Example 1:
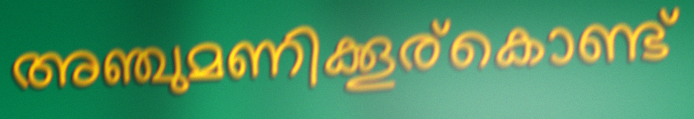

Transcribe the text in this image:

അഞ്ചുമണിക്കൂര്കൊണ്ട്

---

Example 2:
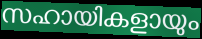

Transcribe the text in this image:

സഹായികളായും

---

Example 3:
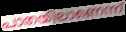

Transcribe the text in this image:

പാതയിലാണെന്ന്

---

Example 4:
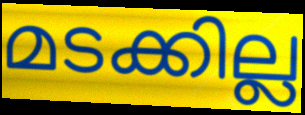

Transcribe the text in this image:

മടക്കില്ല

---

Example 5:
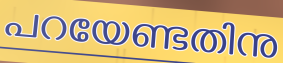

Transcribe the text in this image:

പറയേണ്ടതിനു